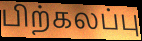
பிற்கலப்பு